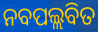
ନବପଲ୍ଲବିତ